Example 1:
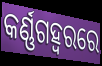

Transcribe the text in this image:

କର୍ଣ୍ଣଗହ୍ଵରରେ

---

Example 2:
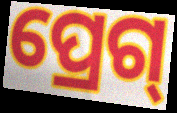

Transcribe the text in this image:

ପ୍ରେଗ୍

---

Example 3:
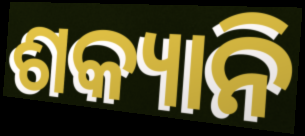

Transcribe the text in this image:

ଶକ୍ୟାନି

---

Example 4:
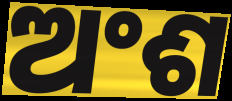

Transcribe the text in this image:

ଅଂଶ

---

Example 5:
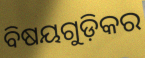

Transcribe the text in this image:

ବିଷୟଗୁଡ଼ିକର